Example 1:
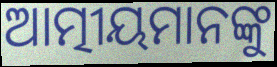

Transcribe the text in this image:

ଆତ୍ମୀୟମାନଙ୍କୁ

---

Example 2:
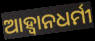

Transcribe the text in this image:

ଆହ୍ବାନଧର୍ମୀ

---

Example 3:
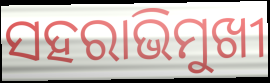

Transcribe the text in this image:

ସହରାଭିମୁଖୀ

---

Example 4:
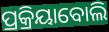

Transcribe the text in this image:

ପ୍ରକ୍ରିୟାବୋଲି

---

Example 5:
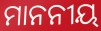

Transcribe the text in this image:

ମାନନୀୟ